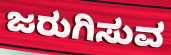
ಜರುಗಿಸುವ